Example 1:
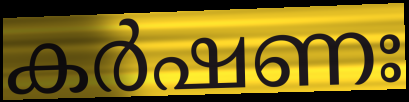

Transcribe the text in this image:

കർഷണഃ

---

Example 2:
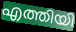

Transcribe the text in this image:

എത്തിയി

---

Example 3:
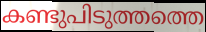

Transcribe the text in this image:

കണ്ടുപിടുത്തത്തെ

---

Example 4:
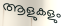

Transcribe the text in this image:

ആളുകളും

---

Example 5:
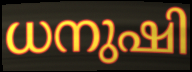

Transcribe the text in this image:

ധനുഷി